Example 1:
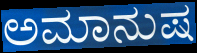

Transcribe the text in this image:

ಅಮಾನುಷ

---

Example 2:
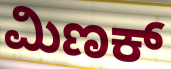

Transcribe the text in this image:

ಮಿಣಕ್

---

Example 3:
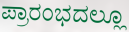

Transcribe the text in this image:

ಪ್ರಾರಂಭದಲ್ಲೂ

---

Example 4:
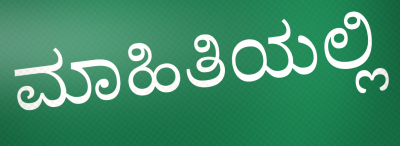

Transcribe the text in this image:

ಮಾಹಿತಿಯಲ್ಲಿ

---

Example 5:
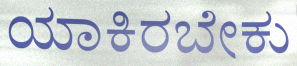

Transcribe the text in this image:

ಯಾಕಿರಬೇಕು